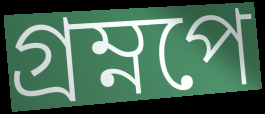
গ্রম্নপে